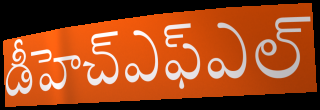
డీహెచ్ఎఫ్ఎల్